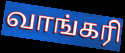
வாங்கரி